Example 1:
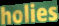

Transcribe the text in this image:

holies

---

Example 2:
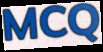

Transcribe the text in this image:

MCQ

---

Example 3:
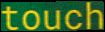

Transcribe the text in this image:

touch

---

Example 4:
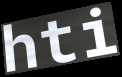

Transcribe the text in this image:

hti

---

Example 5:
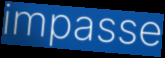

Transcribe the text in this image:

impasse